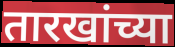
तारखांच्या